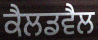
ਕੈਲਡਵੈਲ